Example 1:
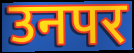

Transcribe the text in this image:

उनपर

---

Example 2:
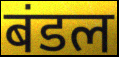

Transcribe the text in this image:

बंडल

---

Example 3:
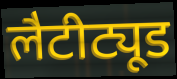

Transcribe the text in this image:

लैटीट्यूड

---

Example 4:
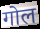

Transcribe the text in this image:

गोल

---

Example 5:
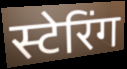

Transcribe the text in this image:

स्टेरिंग